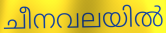
ചീനവലയിൽ